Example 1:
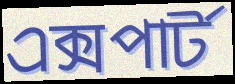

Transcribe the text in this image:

এক্সপার্ট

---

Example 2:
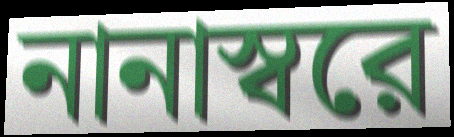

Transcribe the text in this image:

নানাস্বরে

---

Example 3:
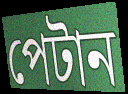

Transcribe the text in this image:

পেটান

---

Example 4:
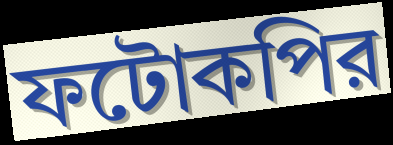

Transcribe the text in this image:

ফটোকপির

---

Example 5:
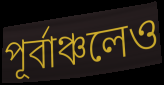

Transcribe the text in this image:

পূর্বাঞ্চলেও